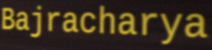
Bajracharya